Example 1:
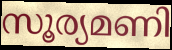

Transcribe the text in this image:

സൂര്യമണി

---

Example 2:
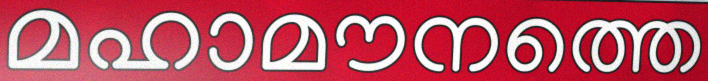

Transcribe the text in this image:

മഹാമൗനത്തെ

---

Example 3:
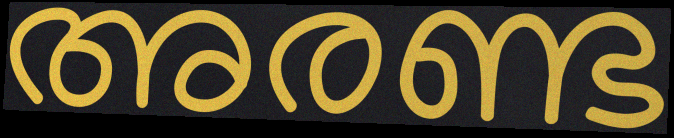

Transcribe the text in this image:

അരണ്ട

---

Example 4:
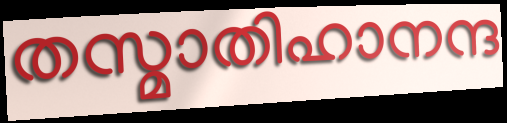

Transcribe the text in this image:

തസ്മാതിഹാനന്ദ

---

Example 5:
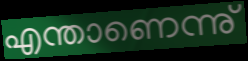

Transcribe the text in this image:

എന്താണെന്നു്